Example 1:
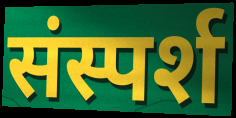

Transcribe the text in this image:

संस्पर्श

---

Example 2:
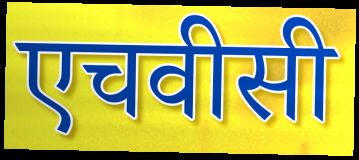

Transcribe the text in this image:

एचवीसी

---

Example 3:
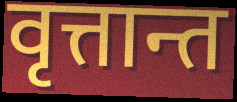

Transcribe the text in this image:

वृत्तान्त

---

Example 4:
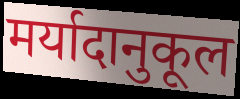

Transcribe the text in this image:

मर्यादानुकूल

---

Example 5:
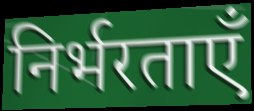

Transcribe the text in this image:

निर्भरताएँ